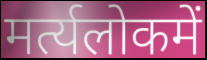
मर्त्यलोकमें